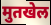
मुतखेल